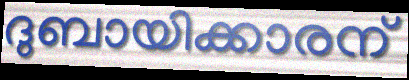
ദുബായിക്കാരന്